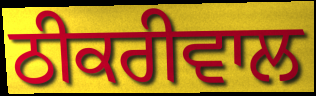
ਠੀਕਰੀਵਾਲ